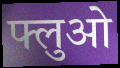
फ्लुओ